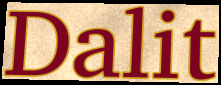
Dalit